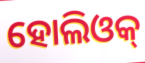
ହୋଲିଓକ୍